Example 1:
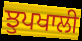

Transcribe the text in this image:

ਝੁਪਖਾਲੀ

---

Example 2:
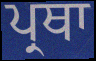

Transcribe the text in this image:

ਪ੍ਰਥਾ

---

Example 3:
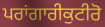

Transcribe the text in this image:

ਪਰਾਂਗਾਰੀਕੁਟੀਰੋ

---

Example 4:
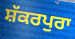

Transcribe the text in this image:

ਸ਼ੱਕਰਪੁਰਾ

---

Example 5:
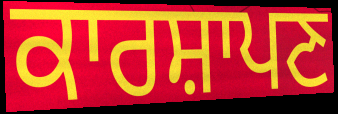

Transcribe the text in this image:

ਕਾਰਸ਼ਾਪਣ